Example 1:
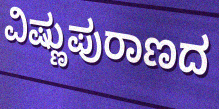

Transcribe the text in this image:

ವಿಷ್ಣುಪುರಾಣದ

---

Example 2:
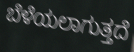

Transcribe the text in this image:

ಬೆಳೆಯಲಾಗುತ್ತದೆ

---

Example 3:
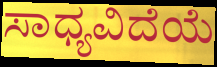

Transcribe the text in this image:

ಸಾಧ್ಯವಿದೆಯೆ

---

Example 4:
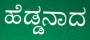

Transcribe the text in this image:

ಹೆಡ್ಡನಾದ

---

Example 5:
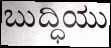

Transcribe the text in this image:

ಬುದ್ಧಿಯು